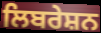
ਲਿਬਰੇਸ਼ਨ